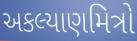
અકલ્યાણમિત્રો